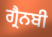
ਗ੍ਰੈਨਬੀ